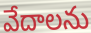
వేదాలను